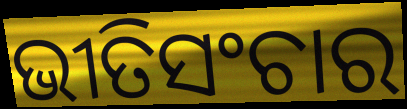
ଭୀତିସଂଚାର